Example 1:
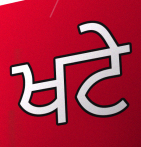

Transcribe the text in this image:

ਖਟੇ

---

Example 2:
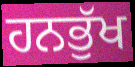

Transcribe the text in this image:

ਹਨਭੁੱਖ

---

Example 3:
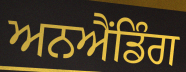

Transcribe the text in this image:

ਅਨਐਂਡਿੰਗ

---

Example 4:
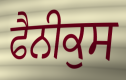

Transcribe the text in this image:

ਫੈਨੀਕੁਸ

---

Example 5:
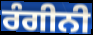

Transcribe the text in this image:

ਰੰਗੀਨੀ